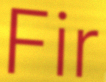
Fir